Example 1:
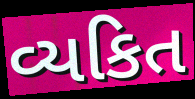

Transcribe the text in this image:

વ્યકિત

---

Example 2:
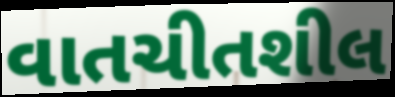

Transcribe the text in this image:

વાતચીતશીલ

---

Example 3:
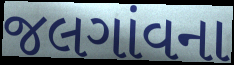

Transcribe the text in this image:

જલગાંવના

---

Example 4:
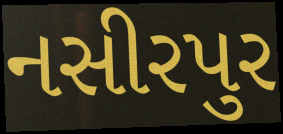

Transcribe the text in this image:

નસીરપુર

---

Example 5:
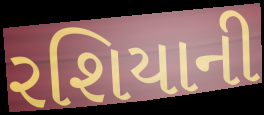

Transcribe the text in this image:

રશિયાની